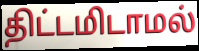
திட்டமிடாமல்